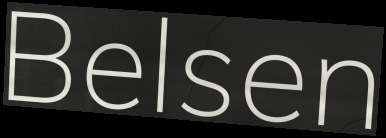
Belsen